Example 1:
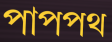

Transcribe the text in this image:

পাপপথ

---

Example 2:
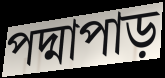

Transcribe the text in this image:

পদ্মাপাড়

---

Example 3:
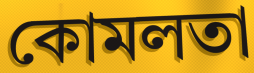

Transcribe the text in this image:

কোমলতা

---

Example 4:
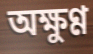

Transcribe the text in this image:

অক্ষুণ্ণ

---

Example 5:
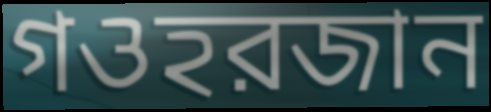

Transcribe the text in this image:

গওহরজান